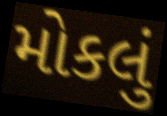
મોકલું